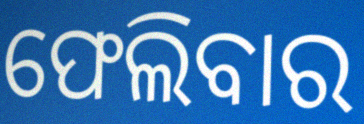
ଫେଲିବାର